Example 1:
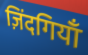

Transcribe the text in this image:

ज़िंदगियाँ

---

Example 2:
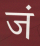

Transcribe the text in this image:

जं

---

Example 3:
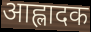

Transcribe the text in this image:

आह्लादक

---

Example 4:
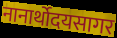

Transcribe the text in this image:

नानार्थोदयसागर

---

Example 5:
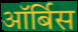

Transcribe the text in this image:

ऑर्बिस